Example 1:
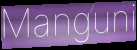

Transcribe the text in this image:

Manguni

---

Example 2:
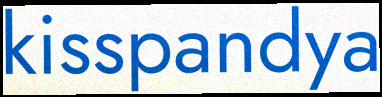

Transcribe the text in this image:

kisspandya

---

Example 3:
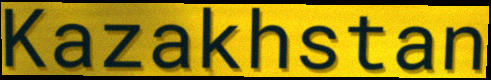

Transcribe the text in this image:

Kazakhstan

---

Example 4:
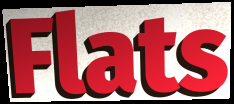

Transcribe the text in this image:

Flats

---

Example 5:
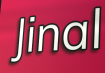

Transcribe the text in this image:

Jinal